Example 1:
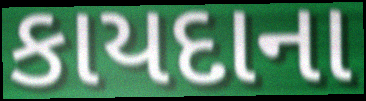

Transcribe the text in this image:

કાયદાના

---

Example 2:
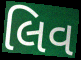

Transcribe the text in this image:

લિવ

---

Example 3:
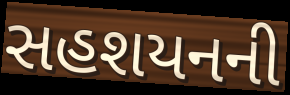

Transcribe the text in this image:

સહશયનની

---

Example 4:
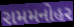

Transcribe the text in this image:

રામમનોહર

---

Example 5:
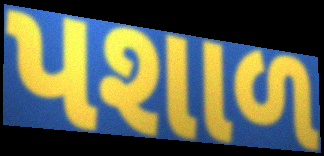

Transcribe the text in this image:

પશાળ